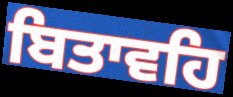
ਬਿਤਾਵਹਿ